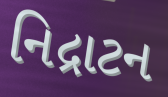
નિદ્રાટન